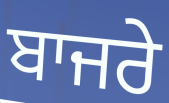
ਬਾਜਰੇ